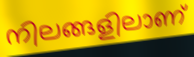
നിലങ്ങളിലാണ്